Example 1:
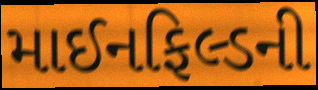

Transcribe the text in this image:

માઈનફિલ્ડની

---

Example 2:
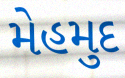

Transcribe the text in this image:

મેહમુદ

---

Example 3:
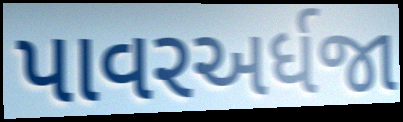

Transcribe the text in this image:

પાવરઅર્ધજા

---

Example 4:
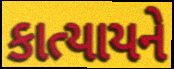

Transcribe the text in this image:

કાત્યાયને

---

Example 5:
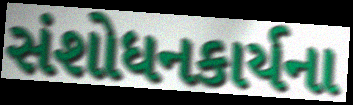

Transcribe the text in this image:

સંશોધનકાર્યના